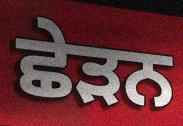
ਛੇੜਨ